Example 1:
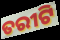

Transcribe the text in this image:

ତରୀଟି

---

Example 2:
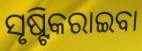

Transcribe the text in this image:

ସୃଷ୍ଟିକରାଇବା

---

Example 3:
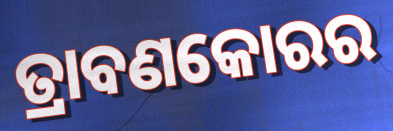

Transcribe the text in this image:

ତ୍ରାବଣକୋରର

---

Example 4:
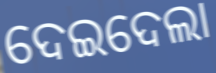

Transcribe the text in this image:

ଦେଇଦେଲା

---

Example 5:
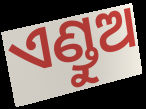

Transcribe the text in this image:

ଏଣ୍ଡୁଅ